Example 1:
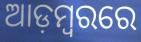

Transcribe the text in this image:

ଆଡ଼ମ୍ୱରରେ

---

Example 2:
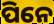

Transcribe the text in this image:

ପିନେ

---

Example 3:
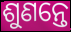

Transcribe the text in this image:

ଶୁଣନ୍ତେ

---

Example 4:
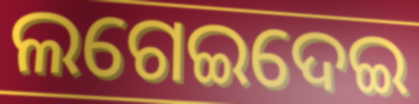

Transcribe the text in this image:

ଲଗେଇଦେଇ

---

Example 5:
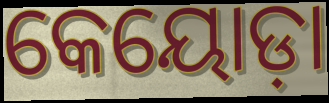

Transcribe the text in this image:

କେୟୋଡ଼ା